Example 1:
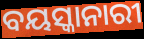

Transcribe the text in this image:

ବୟସ୍କାନାରୀ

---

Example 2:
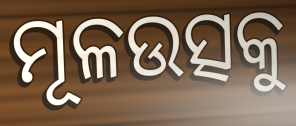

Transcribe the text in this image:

ମୂଳଉତ୍ସକୁ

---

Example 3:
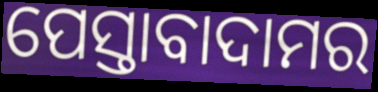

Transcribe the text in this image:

ପେସ୍ତାବାଦାମର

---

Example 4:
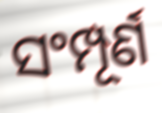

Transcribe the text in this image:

ସଂମ୍ପୂର୍ଣ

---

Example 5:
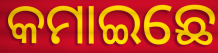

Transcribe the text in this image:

କମାଇଛେ